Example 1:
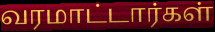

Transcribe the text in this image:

வரமாட்டார்கள்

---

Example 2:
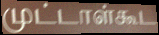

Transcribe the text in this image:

முட்டாள்கூட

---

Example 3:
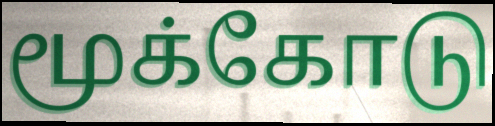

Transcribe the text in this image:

மூக்கோடு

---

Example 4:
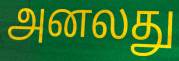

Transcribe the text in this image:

அனலது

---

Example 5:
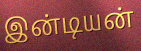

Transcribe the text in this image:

இன்டியன்